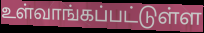
உள்வாங்கப்பட்டுள்ள